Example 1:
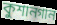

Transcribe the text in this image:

কুশানগান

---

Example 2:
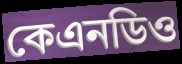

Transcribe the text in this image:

কেএনডিও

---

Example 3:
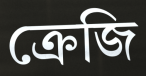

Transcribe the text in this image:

ক্রেজি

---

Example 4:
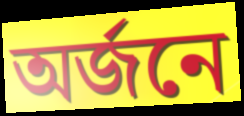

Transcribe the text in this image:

অর্জনে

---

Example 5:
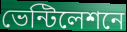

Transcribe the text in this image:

ভেন্টিলেশনে